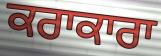
ਕਰਾਕਾਰਾ